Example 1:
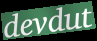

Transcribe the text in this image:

devdut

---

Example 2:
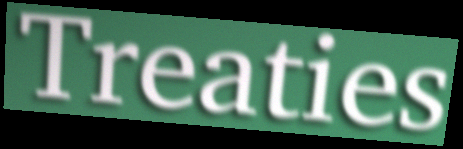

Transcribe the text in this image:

Treaties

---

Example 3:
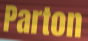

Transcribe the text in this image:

Parton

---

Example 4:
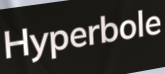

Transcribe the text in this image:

Hyperbole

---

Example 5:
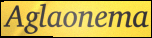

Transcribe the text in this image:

Aglaonema